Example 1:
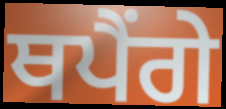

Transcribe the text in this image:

ਥਪੈਂਗੇ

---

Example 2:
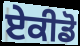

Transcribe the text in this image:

ਏਕੀਡੋ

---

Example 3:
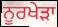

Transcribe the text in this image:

ਨੂਰਖੇੜਾ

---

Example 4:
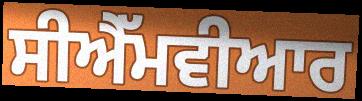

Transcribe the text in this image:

ਸੀਐੱਮਵੀਆਰ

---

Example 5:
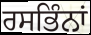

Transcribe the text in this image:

ਰਸਭਿੰਨਾਂ